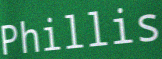
Phillis